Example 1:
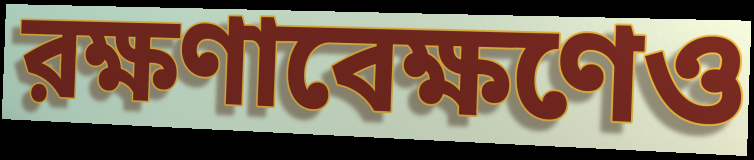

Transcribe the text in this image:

রক্ষণাবেক্ষণেও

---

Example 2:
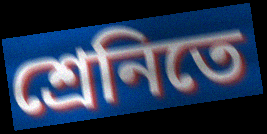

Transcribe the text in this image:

শ্রেনিতে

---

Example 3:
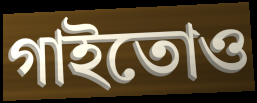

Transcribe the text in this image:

গাইতোও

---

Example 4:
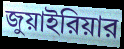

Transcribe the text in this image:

জুয়াইরিয়ার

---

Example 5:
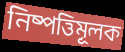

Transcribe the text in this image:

নিষ্পত্তিমূলক